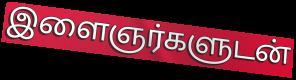
இளைஞர்களுடன்